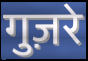
गुज़रे